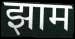
झाम